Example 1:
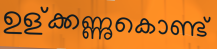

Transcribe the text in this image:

ഉള്ക്കണ്ണുകൊണ്ട്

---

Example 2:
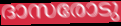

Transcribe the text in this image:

ദാസരോടു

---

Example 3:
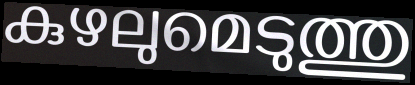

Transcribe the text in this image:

കുഴലുമെടുത്തു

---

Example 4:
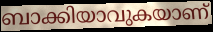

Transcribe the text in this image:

ബാക്കിയാവുകയാണ്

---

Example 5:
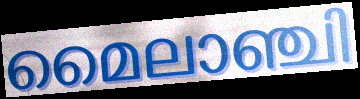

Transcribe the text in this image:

മൈലാഞ്ചി